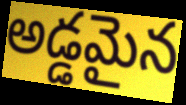
అడ్డమైన